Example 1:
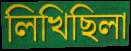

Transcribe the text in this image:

লিখিছিলা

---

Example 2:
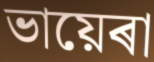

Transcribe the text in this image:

ভায়েৰা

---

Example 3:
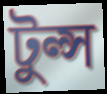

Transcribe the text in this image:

টুল্স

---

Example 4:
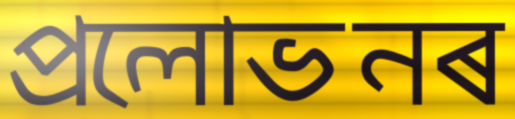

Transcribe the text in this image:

প্ৰলোভনৰ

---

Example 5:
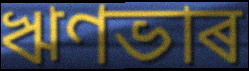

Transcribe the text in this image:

ঋণভাৰ